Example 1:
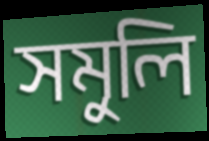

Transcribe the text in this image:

সমুলি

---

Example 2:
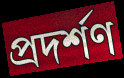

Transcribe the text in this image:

প্ৰদৰ্শণ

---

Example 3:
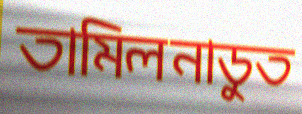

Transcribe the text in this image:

তামিলনাডুত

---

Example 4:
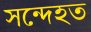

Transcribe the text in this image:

সন্দেহত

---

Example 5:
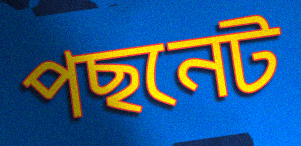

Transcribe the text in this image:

পছনেট